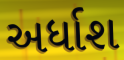
અર્ધાશ